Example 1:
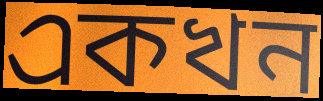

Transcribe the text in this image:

একখন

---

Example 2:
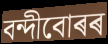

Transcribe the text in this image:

বন্দীবোৰৰ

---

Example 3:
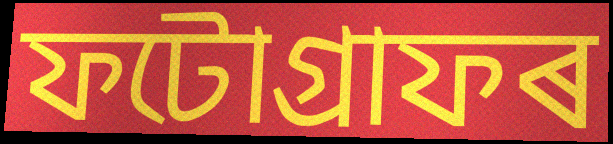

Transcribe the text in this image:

ফটোগ্ৰাফৰ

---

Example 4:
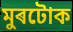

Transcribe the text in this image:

মুৰটোক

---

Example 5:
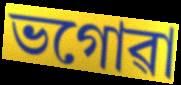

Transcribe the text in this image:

ভগোৱা